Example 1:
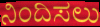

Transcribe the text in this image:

ನಿಂದಿಸಲು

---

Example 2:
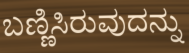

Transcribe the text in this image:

ಬಣ್ಣಿಸಿರುವುದನ್ನು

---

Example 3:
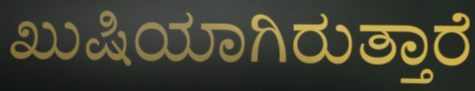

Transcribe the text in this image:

ಖುಷಿಯಾಗಿರುತ್ತಾರೆ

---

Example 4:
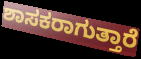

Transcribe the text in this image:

ಶಾಸಕರಾಗುತ್ತಾರೆ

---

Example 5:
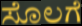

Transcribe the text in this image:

ಸೊಲಗೆ